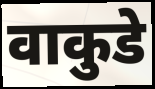
वाकुडे